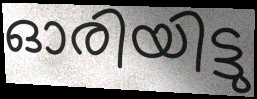
ഓരിയിട്ടു